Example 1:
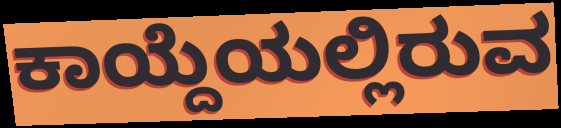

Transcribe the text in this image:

ಕಾಯ್ದೆಯಲ್ಲಿರುವ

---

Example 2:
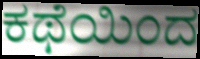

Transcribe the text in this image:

ಕಥೆಯಿಂದ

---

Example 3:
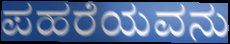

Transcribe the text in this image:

ಪಹರೆಯವನು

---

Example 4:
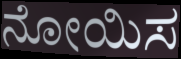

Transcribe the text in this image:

ನೋಯಿಸ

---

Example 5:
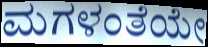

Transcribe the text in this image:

ಮಗಳಂತೆಯೇ